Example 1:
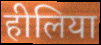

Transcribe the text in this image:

हीलिया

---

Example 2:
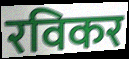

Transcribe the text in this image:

रविकर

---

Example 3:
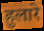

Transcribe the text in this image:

हुलारे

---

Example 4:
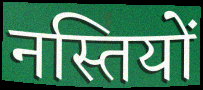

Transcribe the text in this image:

नस्तियों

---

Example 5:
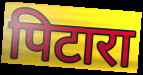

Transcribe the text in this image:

पिटारा